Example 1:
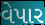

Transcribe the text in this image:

વેપાર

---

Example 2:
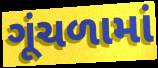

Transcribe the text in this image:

ગૂંચળામાં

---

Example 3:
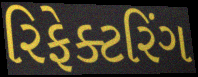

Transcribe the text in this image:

રિફેક્ટરિંગ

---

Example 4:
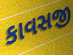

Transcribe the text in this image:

કાવસજી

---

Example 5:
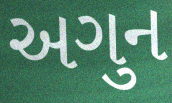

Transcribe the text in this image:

અગુન